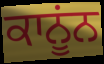
ਕਾਨੂਂਨ